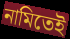
নামিতেই